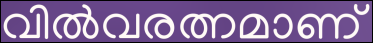
വിൽവരത്നമാണ്